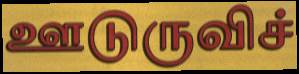
ஊடுருவிச்